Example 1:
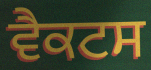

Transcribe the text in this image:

ਵੈਕਟਸ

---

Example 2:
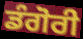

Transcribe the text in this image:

ਡੰਗੋਰੀ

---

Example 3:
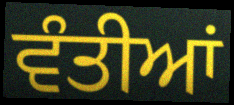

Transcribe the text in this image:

ਵੰਤੀਆਂ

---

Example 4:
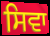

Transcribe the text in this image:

ਸਿਵਾ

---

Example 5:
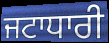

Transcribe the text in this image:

ਜਟਾਧਾਰੀ